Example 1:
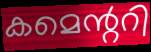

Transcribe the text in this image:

കമെന്ററി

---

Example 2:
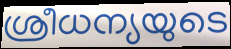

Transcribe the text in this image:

ശ്രീധന്യയുടെ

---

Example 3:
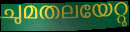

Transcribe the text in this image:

ചുമതലയേറ്റു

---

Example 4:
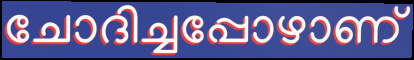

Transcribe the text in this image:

ചോദിച്ചപ്പോഴാണ്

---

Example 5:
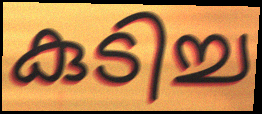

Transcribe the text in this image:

കുടിച്ച